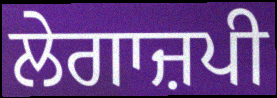
ਲੇਗਾਜ਼ਪੀ